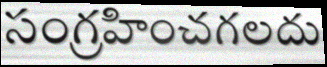
సంగ్రహించగలదు